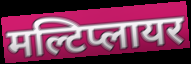
मल्टिप्लायर